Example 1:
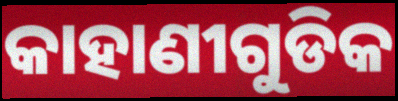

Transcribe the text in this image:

କାହାଣୀଗୁଡିକ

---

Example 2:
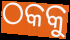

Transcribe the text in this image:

ଠକକୁ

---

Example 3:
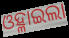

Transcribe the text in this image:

ଓହ୍ଳାଇଲା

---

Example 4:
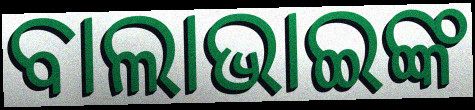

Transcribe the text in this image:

ବାଲାଭାଇଙ୍କ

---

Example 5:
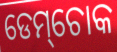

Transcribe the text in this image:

ଡେମ୍‌ଚୋକ